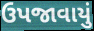
ઉપજાવાયું